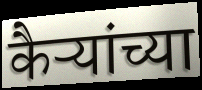
कैऱ्यांच्या